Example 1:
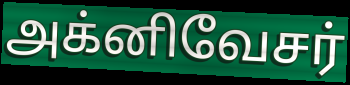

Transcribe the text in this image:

அக்னிவேசர்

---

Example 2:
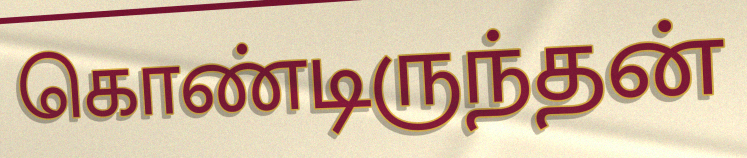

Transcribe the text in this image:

கொண்டிருந்தன்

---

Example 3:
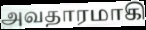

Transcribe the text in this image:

அவதாரமாகி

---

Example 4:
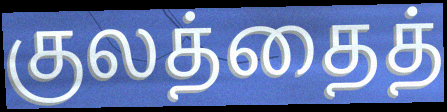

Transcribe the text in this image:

குலத்தைத்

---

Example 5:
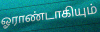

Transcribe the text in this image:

ஓராண்டாகியும்